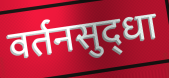
वर्तनसुद्धा